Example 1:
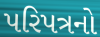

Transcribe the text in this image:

પરિપત્રનો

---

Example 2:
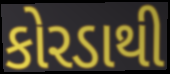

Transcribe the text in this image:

કોરડાથી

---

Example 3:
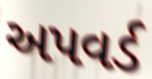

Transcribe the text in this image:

અપવર્ડ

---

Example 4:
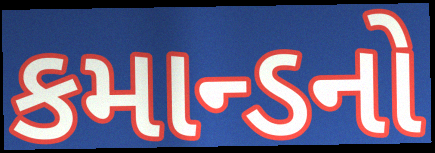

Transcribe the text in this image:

કમાન્ડનો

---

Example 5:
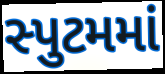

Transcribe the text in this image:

સ્પુટમમાં